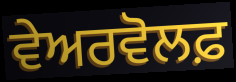
ਵੇਅਰਵੋਲਫ਼